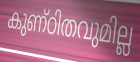
കുണ്ഠിതവുമില്ല